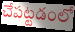
చేపట్టడంలో